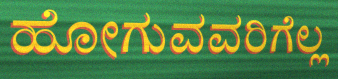
ಹೋಗುವವರಿಗೆಲ್ಲ